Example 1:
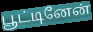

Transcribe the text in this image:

பூட்டினேன்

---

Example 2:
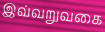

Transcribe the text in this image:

இவ்வறுவகை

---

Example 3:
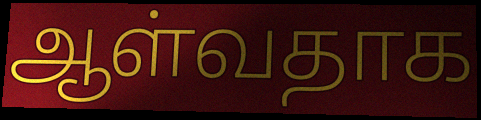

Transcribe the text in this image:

ஆள்வதாக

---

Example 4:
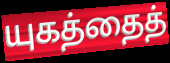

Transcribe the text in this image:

யுகத்தைத்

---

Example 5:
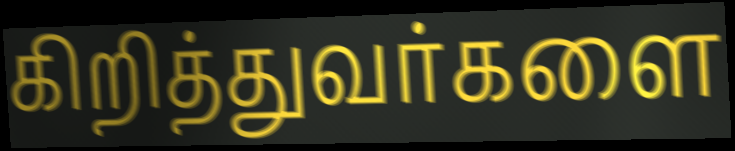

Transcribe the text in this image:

கிறித்துவர்களை